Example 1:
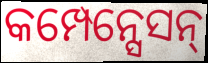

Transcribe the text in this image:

କମ୍ପେନ୍ସେସନ୍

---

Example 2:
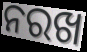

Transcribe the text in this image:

ନରଖ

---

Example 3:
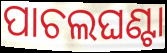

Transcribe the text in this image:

ପାଚଲଘଣ୍ଟା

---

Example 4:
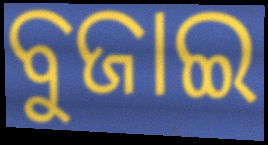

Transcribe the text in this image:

ବୁଜାଇ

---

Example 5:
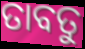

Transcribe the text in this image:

ତାବତୁ